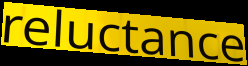
reluctance